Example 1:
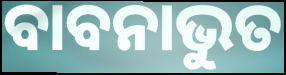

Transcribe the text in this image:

ବାବନାଭୁତ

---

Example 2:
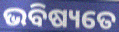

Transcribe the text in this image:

ଭବିଷ୍ୟତେ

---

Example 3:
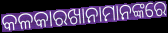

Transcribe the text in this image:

କଳକାରଖାନାମାନଙ୍କରେ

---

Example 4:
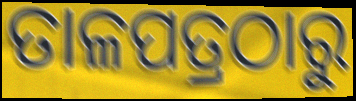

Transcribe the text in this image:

ତାଳପତ୍ରଠାରୁ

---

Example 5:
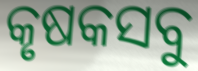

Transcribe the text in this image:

କୃଷକସବୁ